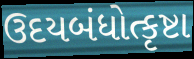
ઉદયબંધોત્કૃષ્ટા